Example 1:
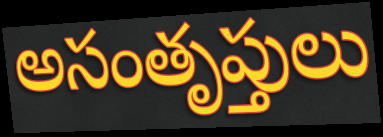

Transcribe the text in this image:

అసంతృప్తులు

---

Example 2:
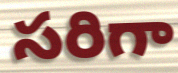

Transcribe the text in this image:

సరిగా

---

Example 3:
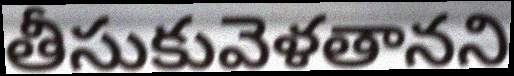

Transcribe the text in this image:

తీసుకువెళతానని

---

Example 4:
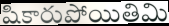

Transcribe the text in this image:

షికారుపోయితిమి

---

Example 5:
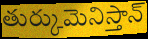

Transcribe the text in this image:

తుర్కుమెనిస్తాన్